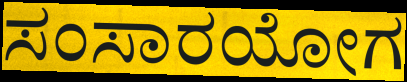
ಸಂಸಾರಯೋಗ